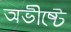
অভীষ্টে